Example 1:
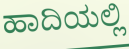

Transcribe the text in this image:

ಹಾದಿಯಲ್ಲಿ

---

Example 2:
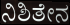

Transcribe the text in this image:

ನಿಶಿತೇನ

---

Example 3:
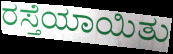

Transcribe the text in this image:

ರಸ್ತೆಯಾಯಿತು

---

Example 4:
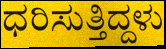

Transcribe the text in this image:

ಧರಿಸುತ್ತಿದ್ದಳು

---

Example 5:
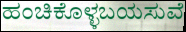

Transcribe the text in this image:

ಹಂಚಿಕೊಳ್ಳಬಯಸುವೆ